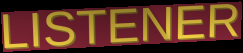
LISTENER